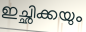
ഇച്ഛിക്കയും